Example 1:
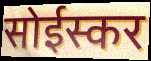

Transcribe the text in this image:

सोईस्कर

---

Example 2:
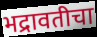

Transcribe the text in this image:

भद्रावतीचा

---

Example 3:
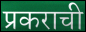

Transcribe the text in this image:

प्रकराची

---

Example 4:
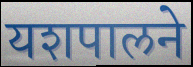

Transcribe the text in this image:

यशपालने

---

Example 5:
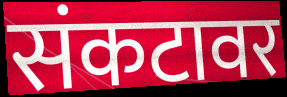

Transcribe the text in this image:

संकटावर